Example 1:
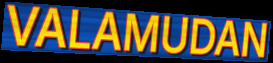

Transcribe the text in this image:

VALAMUDAN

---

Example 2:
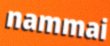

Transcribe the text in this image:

nammai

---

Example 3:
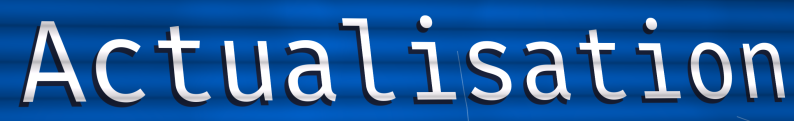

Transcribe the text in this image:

Actualisation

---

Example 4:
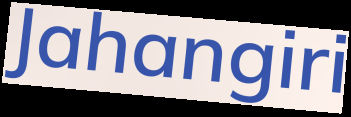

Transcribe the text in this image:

Jahangiri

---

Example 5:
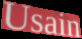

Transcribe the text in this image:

Usain